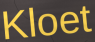
Kloet